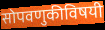
सोपवणुकीविषयी